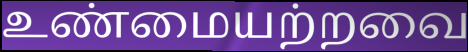
உண்மையற்றவை